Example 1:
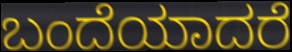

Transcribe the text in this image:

ಬಂದೆಯಾದರೆ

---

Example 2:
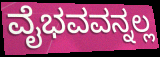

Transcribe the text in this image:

ವೈಭವವನ್ನಲ್ಲ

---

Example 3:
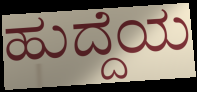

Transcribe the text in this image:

ಹುದ್ದೆಯ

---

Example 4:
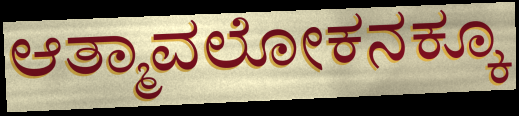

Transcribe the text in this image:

ಆತ್ಮಾವಲೋಕನಕ್ಕೂ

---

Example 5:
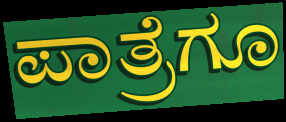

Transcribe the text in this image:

ಪಾತ್ರೆಗೂ